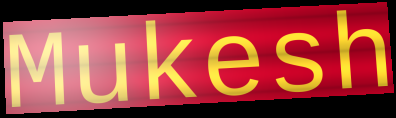
Mukesh